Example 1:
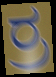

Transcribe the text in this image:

ರ್ರ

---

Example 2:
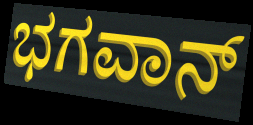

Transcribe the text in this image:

ಭಗವಾನ್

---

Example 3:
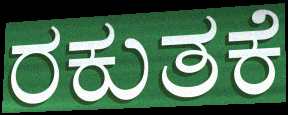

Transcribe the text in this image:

ರಕುತಕೆ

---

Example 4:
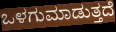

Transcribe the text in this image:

ಒಳಗುಮಾಡುತ್ತದೆ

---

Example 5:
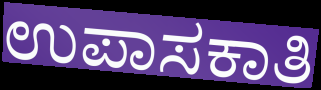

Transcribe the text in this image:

ಉಪಾಸಕಾತಿ